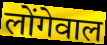
लोंगेवाल